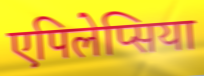
एपिलेप्सिया